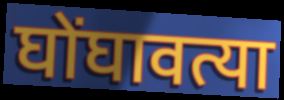
घोंघावत्या